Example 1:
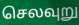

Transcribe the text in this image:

செலவுறு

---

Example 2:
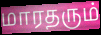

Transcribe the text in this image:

மாரதரும்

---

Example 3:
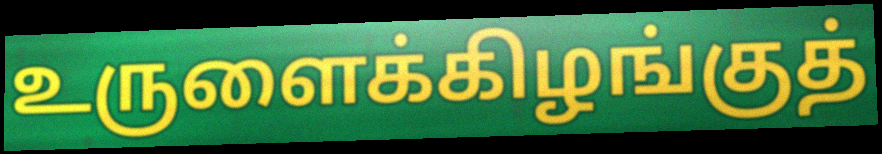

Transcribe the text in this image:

உருளைக்கிழங்குத்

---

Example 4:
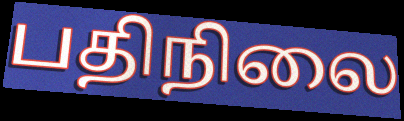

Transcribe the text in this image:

பதிநிலை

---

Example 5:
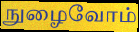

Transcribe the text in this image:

நுழைவோம்